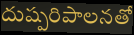
దుష్పరిపాలనతో